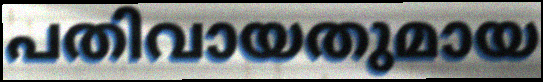
പതിവായതുമായ